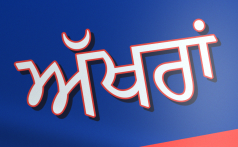
ਅੱਖਰਾਂ